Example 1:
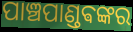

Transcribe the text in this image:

ପାଞ୍ଚପାଣ୍ଡଵଙ୍କର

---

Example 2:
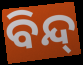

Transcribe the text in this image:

ବିନ୍ଦ୍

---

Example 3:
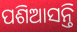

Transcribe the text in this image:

ପଶିଆସନ୍ତି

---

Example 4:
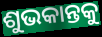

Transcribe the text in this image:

ଶୁଭକାନ୍ତକୁ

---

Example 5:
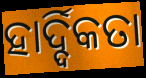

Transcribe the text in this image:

ହାର୍ଦ୍ଦିକତା